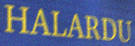
HALARDU